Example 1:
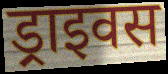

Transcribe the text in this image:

ड्राइवस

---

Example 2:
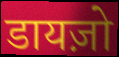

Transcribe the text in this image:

डायज़ो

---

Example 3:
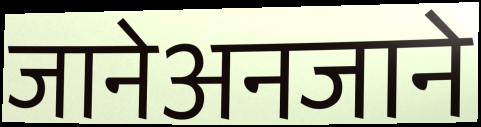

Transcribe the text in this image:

जानेअनजाने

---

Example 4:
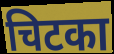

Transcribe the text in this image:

चिटका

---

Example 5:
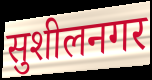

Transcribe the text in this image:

सुशीलनगर